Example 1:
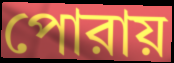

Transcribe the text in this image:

পোরায়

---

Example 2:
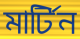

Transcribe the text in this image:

মার্টিন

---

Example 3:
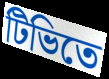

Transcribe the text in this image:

টিভিতে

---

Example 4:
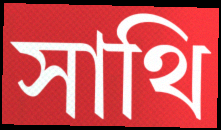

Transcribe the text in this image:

সাথি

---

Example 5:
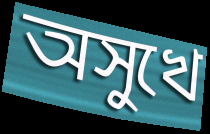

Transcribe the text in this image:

অসুখে